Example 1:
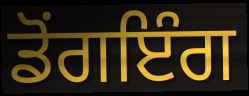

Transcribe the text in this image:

ਡੋਂਗਇੰਗ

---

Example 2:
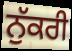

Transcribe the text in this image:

ਨੁੱਕਰੀ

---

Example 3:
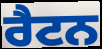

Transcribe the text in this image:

ਰੈਟਨ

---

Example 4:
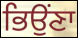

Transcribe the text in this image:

ਭਿਉਂਣਾ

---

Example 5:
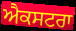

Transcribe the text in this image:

ਐਕਸਟਰਾ